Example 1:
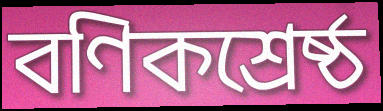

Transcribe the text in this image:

বণিকশ্রেষ্ঠ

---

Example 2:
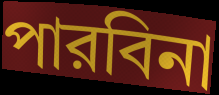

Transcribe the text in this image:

পারবিনা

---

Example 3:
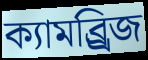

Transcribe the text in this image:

ক্যামব্র্রিজ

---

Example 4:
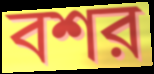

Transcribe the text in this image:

বশর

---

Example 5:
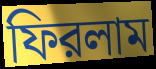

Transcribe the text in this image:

ফিরলাম